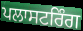
ਪਲਾਸਟਰਿੰਗ